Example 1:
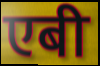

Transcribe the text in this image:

एबी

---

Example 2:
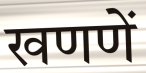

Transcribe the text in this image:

खणणें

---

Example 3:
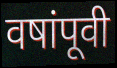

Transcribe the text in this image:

वषांपूवी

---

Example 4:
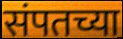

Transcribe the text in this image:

संपतच्या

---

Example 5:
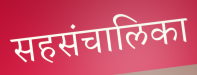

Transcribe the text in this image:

सहसंचालिका